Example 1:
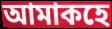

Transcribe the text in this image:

আমাকহে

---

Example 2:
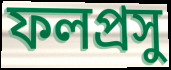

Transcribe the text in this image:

ফলপ্ৰসু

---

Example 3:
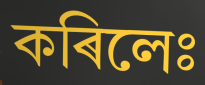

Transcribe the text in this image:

কৰিলেঃ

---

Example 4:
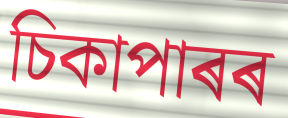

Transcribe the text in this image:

চিকাপাৰৰ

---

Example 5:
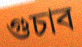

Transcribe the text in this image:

গুচাব